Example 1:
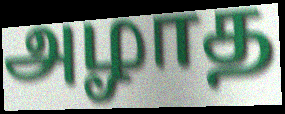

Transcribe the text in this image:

அழாத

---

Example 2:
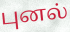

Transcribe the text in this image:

புனல்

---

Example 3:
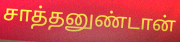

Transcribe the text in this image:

சாத்தனுண்டான்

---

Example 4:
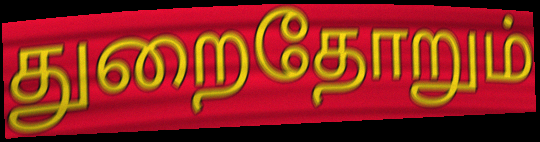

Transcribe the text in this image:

துறைதோறும்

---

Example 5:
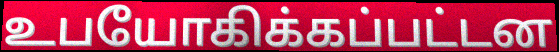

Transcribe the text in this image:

உபயோகிக்கப்பட்டன